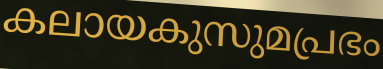
കലായകുസുമപ്രഭം